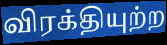
விரக்தியுற்ற